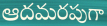
ఆదమరపుగా